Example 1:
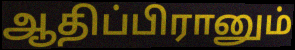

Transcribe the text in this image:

ஆதிப்பிரானும்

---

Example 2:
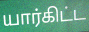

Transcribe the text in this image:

யார்கிட்ட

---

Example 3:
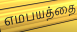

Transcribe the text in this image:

எமபயத்தை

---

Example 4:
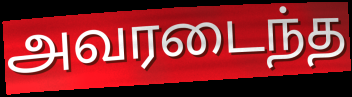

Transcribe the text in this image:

அவரடைந்த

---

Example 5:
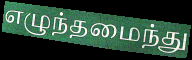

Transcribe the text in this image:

எழுந்தமைந்து